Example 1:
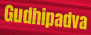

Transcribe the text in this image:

Gudhipadva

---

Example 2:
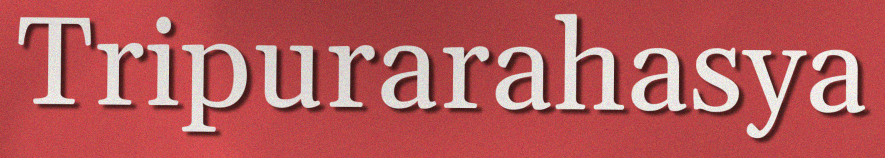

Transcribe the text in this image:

Tripurarahasya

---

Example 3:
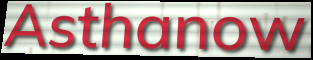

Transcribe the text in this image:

Asthanow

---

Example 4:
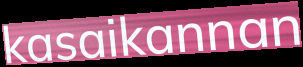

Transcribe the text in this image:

kasaikannan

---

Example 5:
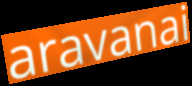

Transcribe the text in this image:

aravanai